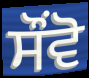
ਸੌਂਵੋ